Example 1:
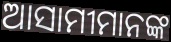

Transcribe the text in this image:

ଆସାମୀମାନଙ୍କ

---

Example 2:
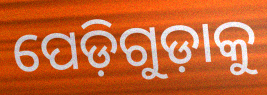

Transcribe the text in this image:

ପେଡ଼ିଗୁଡ଼ାକୁ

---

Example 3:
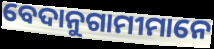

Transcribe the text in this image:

ବେଦାନୁଗାମୀମାନେ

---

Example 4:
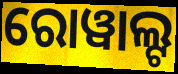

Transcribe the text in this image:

ରୋୱାଲ୍ଟ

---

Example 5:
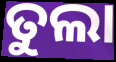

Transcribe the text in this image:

ତୁଲା